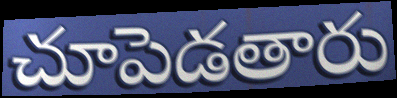
చూపెడతారు